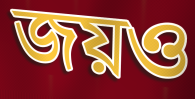
জয়ও